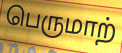
பெருமாற்